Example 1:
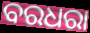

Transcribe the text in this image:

ବରଧରା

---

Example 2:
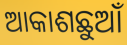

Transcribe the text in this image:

ଆକାଶଛୁଆଁ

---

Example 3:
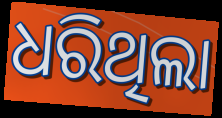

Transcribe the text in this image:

ଧରିଥିଲା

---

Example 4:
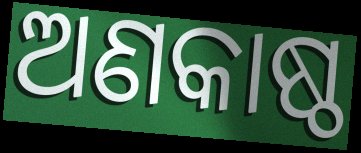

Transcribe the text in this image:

ଅଣକାଷ୍ଠ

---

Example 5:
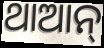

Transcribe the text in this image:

ଥାଆନ୍